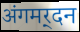
अंगमर्दन